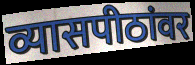
व्यासपीठांवर